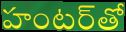
హంటర్‌తో